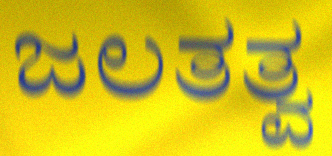
ಜಲತತ್ವ